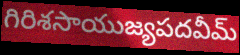
గిరిశసాయుజ్యపదవీమ్